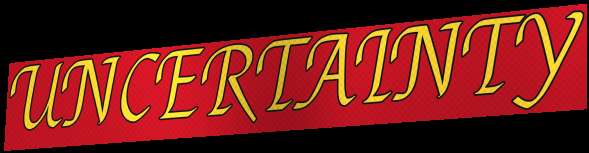
UNCERTAINTY